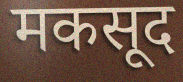
मकसूद